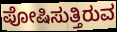
ಪೋಷಿಸುತ್ತಿರುವ